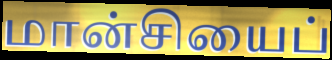
மான்சியைப்